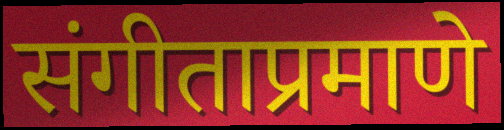
संगीताप्रमाणे